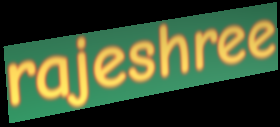
rajeshree